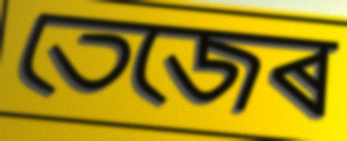
তেজেৰ